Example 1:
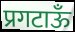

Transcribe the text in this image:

प्रगटाऊँ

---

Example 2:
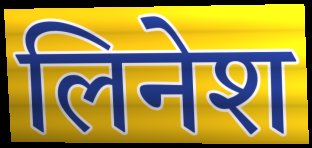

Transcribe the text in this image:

लिनेश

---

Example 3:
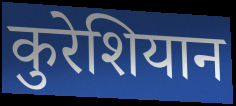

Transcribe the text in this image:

कुरेशियान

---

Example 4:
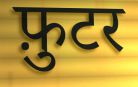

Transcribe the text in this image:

फ़ुटर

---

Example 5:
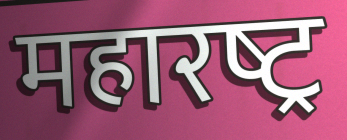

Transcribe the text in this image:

महारष्ट्र